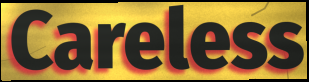
Careless